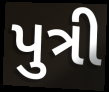
પુત્રી